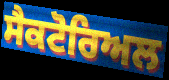
ਸੈਕਟੋਰਿਅਲ